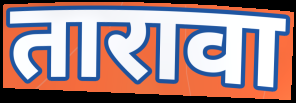
तारावा